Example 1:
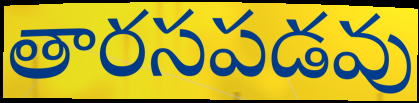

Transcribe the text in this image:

తారసపడవు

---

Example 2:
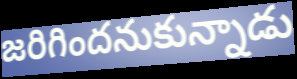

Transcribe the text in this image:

జరిగిందనుకున్నాడు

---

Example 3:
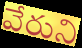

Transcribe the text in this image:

వేరుని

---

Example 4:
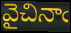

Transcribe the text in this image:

వైచినాఁ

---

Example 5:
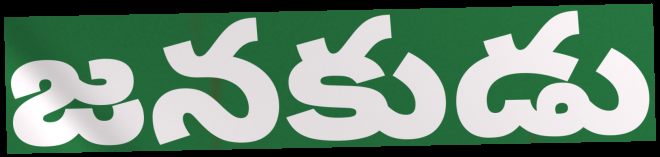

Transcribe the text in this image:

జనకుడు